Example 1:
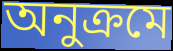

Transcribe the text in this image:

অনুক্ৰমে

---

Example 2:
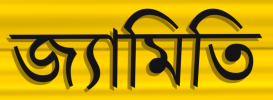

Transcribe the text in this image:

জ্যামিতি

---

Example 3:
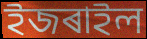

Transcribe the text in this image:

ইজৰাইল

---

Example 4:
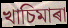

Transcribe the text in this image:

খাচিমাৰা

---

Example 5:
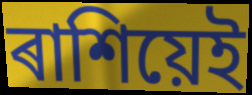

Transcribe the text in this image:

ৰাশিয়েই